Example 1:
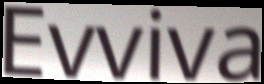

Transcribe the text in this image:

Evviva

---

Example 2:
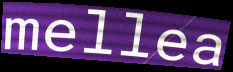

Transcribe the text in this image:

mellea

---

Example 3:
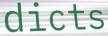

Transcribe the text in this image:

dicts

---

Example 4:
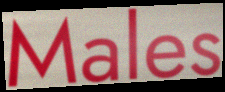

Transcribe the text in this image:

Males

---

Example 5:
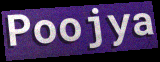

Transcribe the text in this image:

Poojya